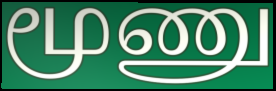
மூணு